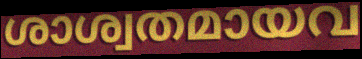
ശാശ്വതമായവ